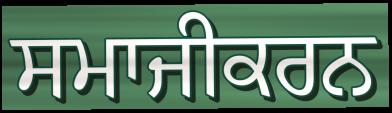
ਸਮਾਜੀਕਰਨ